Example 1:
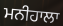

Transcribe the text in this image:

ਮਨੀਹਾਲਾ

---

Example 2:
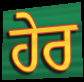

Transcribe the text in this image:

ਹੇਰ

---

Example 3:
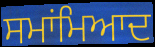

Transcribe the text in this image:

ਸਮਾਂਮਿਆਦ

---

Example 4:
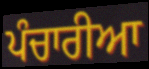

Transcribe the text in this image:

ਪੰਚਾਰੀਆ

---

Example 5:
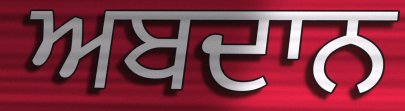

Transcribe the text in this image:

ਅਬਦਾਨ